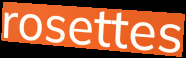
rosettes